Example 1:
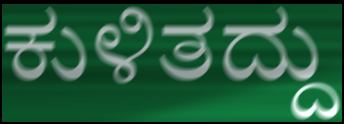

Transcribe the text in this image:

ಕುಳಿತದ್ದು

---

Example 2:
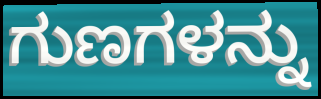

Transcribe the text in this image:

ಗುಣಗಳನ್ನು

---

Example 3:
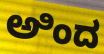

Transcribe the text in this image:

ಅಿಂದ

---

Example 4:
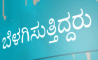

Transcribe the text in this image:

ಬೆಳಗಿಸುತ್ತಿದ್ದರು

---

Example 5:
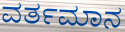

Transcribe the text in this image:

ವರ್ತಮಾನ